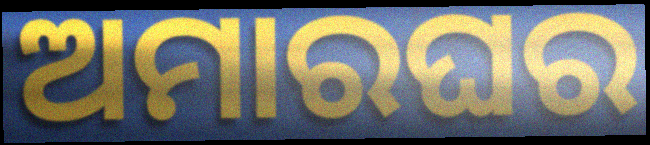
ଅମାରଘର